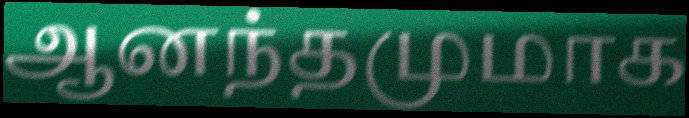
ஆனந்தமுமாக